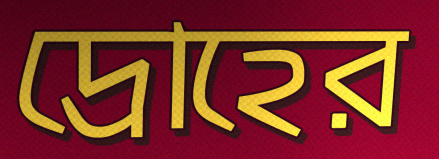
দ্রোহের